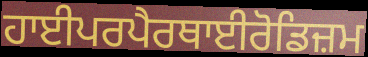
ਹਾਈਪਰਪੈਰਥਾਈਰੋਡਿਜ਼ਮ